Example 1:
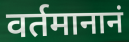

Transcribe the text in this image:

वर्तमानानं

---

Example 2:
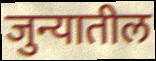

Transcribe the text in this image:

जुन्यातील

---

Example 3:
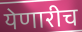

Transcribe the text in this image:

येणारीच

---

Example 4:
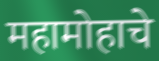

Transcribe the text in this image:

महामोहाचे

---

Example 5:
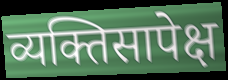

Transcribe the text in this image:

व्यक्तिसापेक्ष